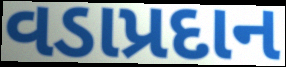
વડાપ્રદાન